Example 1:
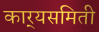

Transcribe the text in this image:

कार्यसमिती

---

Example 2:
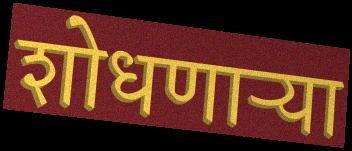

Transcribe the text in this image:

शोधणाऱ्या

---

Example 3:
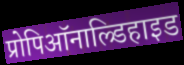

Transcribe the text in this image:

प्रोपिऑनाल्डिहाइड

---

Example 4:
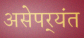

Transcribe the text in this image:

असेपर्यंत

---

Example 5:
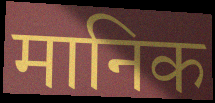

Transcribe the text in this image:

मानिक